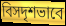
বিসদৃশভাবে